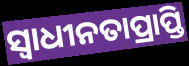
ସ୍ୱାଧୀନତାପ୍ରାପ୍ତି